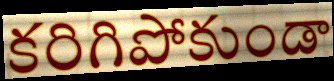
కరిగిపోకుండా